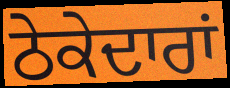
ਠੇਕੇਦਾਰਾਂ